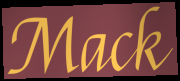
Mack